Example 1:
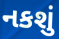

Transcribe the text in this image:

નકશું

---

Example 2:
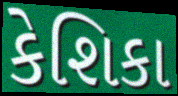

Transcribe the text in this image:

કેશિકા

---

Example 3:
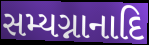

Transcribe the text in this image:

સમ્યગ્નાનાદિ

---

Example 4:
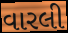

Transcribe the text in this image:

વારલી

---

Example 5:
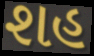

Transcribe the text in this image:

શહ